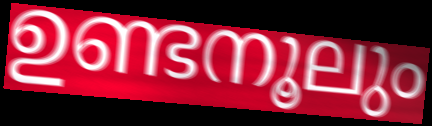
ഉണ്ടനൂലും